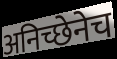
अनिच्छेनेच